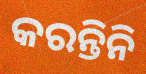
କରନ୍ତିନି